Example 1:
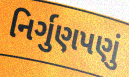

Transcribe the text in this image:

નિર્ગુણપણું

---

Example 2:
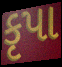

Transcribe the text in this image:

કૃપા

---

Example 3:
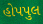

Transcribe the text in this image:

હોપપુલ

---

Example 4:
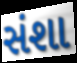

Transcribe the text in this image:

સંશા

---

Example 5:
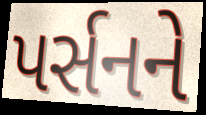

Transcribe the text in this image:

પર્સનને